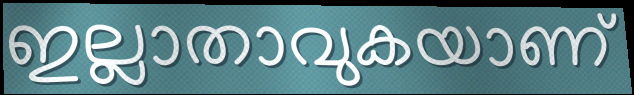
ഇല്ലാതാവുകയാണ്